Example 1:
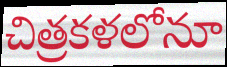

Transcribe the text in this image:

చిత్రకళలోనూ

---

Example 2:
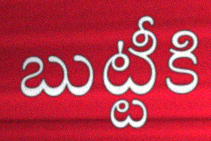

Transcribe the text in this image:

బుట్టీకి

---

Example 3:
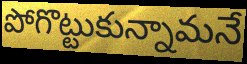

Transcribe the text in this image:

పోగొట్టుకున్నామనే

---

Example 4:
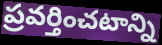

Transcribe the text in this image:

ప్రవర్తించటాన్ని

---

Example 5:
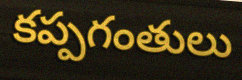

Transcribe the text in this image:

కప్పగంతులు